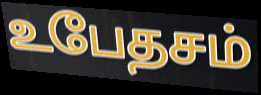
உபேதசம்